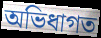
অভিধাগত